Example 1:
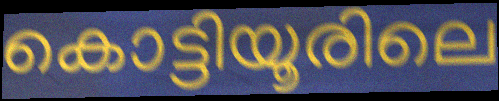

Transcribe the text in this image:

കൊട്ടിയൂരിലെ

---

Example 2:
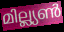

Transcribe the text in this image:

മില്ല്യൺ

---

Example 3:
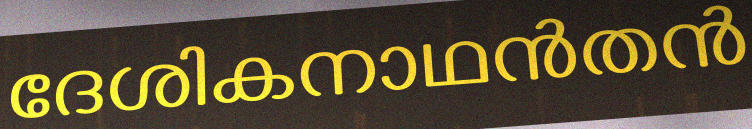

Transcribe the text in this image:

ദേശികനാഥൻതൻ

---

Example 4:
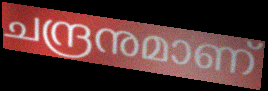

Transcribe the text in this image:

ചന്ദ്രനുമാണ്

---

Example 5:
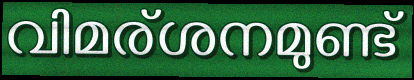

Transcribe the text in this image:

വിമര്ശനമുണ്ട്